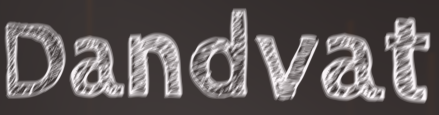
Dandvat